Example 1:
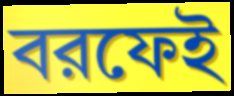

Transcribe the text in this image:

বরফেই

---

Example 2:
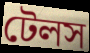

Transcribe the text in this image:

টেলস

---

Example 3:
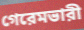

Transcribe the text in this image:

গেরেমভারী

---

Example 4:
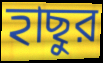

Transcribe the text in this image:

হাছুর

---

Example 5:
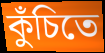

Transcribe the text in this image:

কুঁচিতে